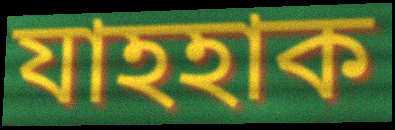
যাহহাক